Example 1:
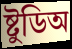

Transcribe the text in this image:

ষ্টুডিঅ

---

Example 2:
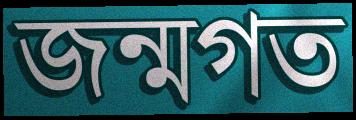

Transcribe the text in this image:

জন্মগত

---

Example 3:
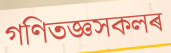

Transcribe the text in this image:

গণিতজ্ঞসকলৰ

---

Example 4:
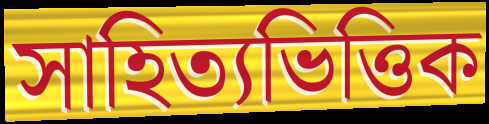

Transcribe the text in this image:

সাহিত্যভিত্তিক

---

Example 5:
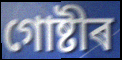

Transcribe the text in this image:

গোষ্টীৰ